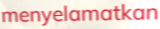
menyelamatkan